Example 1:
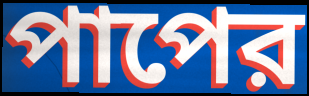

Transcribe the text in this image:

পাপের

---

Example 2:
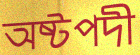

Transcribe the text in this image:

অষ্টপদী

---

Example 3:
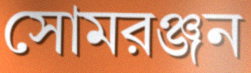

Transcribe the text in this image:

সোমরঞ্জন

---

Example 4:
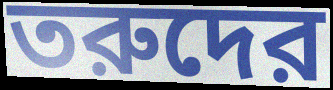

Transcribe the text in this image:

তরুদের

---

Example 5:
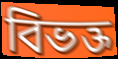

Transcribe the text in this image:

বিভক্ত